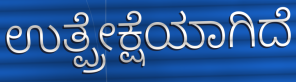
ಉತ್ಪ್ರೇಕ್ಷೆಯಾಗಿದೆ